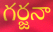
గర్జనా